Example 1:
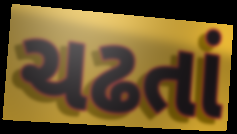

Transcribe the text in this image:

ચઢતાં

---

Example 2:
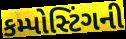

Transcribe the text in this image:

કમ્પોસ્ટિંગની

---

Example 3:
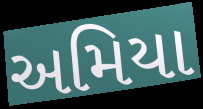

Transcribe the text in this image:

અમિયા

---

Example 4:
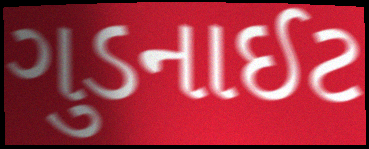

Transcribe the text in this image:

ગુડનાઈટ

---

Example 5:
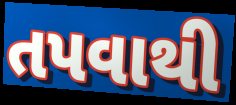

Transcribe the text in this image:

તપવાથી